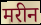
मरीन